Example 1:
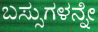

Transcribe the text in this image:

ಬಸ್ಸುಗಳನ್ನೇ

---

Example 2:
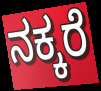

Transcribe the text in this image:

ನಕ್ಕರೆ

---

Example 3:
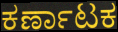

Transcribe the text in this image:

ಕರ್ಣಾಟಕ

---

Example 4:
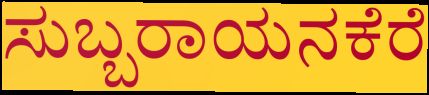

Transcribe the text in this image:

ಸುಬ್ಬರಾಯನಕೆರೆ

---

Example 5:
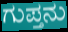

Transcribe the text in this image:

ಗುಪ್ತನು